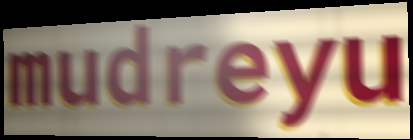
mudreyu